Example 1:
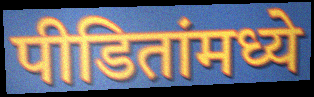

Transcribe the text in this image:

पीडितांमध्ये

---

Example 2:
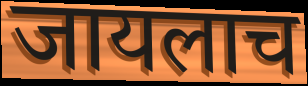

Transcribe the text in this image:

जायलाच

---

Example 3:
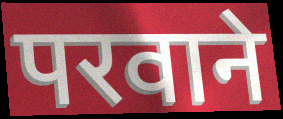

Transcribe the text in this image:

परवाने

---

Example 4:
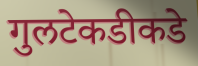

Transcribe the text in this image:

गुलटेकडीकडे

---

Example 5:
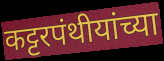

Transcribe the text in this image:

कट्टरपंथीयांच्या